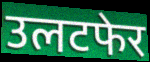
उलटफेर